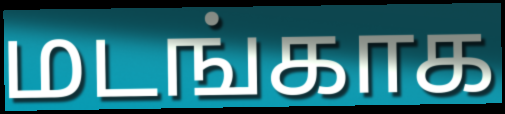
மடங்காக